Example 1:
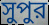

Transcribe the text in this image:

সুপুর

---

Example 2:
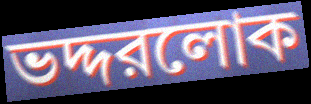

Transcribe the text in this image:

ভদ্দরলোক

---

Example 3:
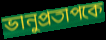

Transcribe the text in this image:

ভানুপ্রতাপকে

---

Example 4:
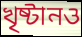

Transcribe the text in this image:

খৃষ্টানও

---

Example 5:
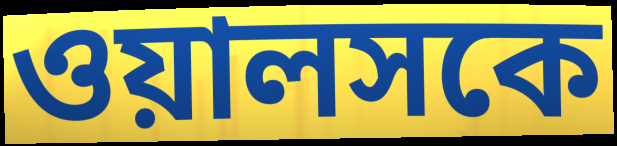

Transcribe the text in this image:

ওয়ালসকে